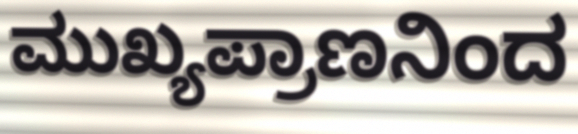
ಮುಖ್ಯಪ್ರಾಣನಿಂದ